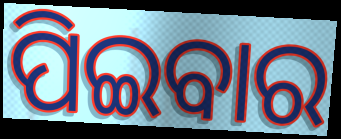
ପିଇବାର